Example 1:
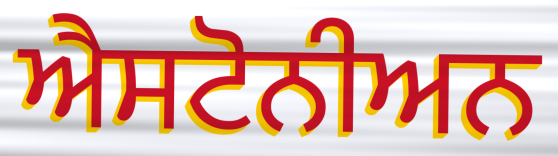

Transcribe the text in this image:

ਐਸਟੋਨੀਅਨ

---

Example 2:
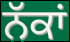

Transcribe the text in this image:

ਨੱਕਾਂ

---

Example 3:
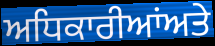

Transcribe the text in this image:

ਅਧਿਕਾਰੀਆਂਅਤੇ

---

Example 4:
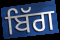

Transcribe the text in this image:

ਬਿੱਗ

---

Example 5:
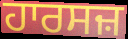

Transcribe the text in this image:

ਹਾਰਸਜ਼